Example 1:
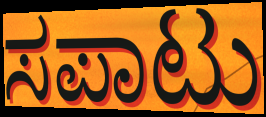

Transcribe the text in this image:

ಸಪಾಟು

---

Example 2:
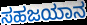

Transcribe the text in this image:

ಸಹಜಯಾನ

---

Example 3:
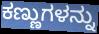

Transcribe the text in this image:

ಕಣ್ಣುಗಳನ್ನು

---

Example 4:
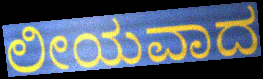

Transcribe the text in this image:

ಲೀಯವಾದ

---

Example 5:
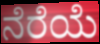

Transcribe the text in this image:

ನೆರೆಯೆ